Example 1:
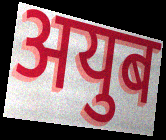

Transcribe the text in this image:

अयुब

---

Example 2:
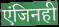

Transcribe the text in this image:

एंजिनही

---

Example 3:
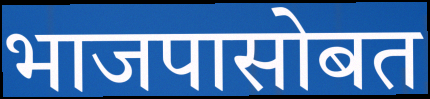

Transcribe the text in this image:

भाजपासोबत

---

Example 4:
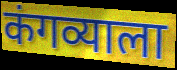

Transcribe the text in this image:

कंगव्याला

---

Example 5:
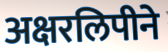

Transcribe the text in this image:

अक्षरलिपीने